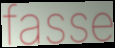
fasse